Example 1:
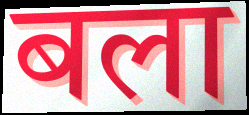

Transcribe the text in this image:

बला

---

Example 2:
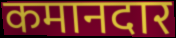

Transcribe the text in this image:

कमानदार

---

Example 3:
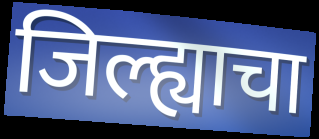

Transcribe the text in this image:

जिल्ह्याचा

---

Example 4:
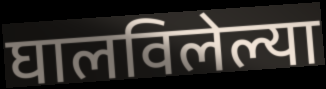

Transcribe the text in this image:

घालविलेल्या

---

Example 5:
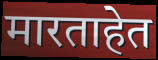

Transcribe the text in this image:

मारताहेत